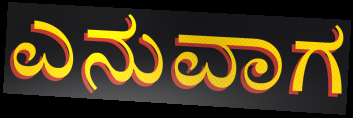
ಎನುವಾಗ